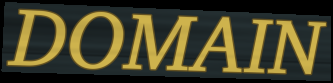
DOMAIN